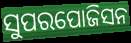
ସୁପରପୋଜିସନ